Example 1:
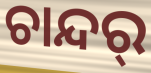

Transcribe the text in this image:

ଚାନ୍ଦର୍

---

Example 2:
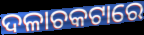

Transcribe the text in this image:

ଦଳାଚକଟାରେ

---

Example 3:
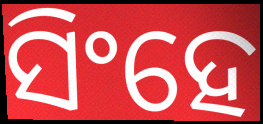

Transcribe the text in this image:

ସିଂହେ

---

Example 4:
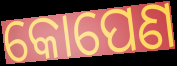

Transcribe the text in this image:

କୋପେଣ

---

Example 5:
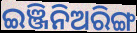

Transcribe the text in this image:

ଇଞ୍ଜିନିଅରିଙ୍ଗ